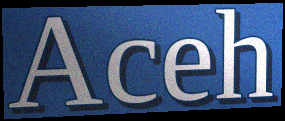
Aceh